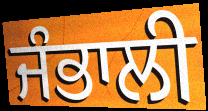
ਜੰਭਾਲੀ